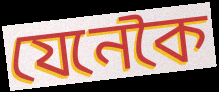
যেনেকৈ